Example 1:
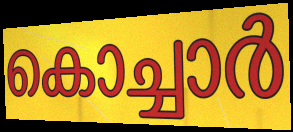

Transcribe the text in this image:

കൊച്ചാർ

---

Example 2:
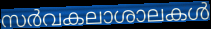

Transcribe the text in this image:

സർവകലാശാലകൾ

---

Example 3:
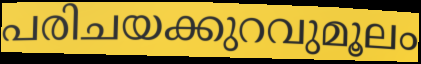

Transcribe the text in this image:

പരിചയക്കുറവുമൂലം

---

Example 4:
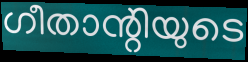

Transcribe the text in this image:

ഗീതാന്റിയുടെ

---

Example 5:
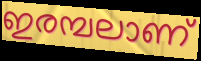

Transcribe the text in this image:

ഇരമ്പലാണ്